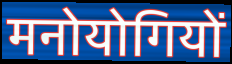
मनोयोगियों